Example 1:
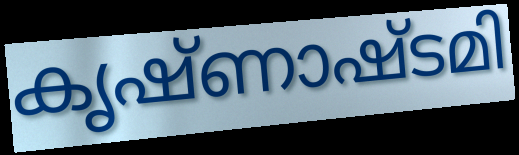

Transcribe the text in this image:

കൃഷ്ണാഷ്ടമി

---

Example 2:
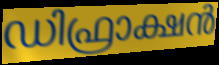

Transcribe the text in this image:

ഡിഫ്രാക്ഷൻ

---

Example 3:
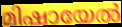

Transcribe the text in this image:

മിഷായേൽ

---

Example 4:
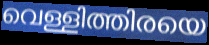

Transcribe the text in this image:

വെള്ളിത്തിരയെ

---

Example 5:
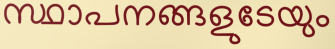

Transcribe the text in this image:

സ്ഥാപനങ്ങളുടേയും